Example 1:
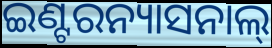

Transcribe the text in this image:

ଇଣ୍ଟରନ୍ୟାସନାଲ୍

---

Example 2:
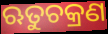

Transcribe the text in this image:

ଋତୁଚକ୍ରଣ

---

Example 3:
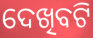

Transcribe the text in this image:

ଦେଖିବଟି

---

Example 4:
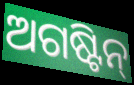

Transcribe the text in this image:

ଅଗଷ୍ଟିନ୍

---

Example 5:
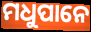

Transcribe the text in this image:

ମଧୁପାନେ